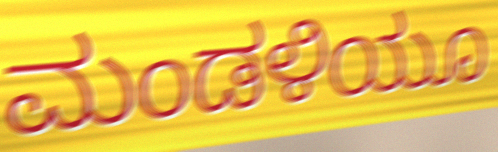
ಮಂಡಳಿಯೂ